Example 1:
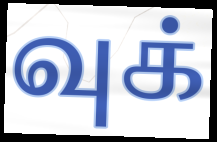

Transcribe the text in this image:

வுக்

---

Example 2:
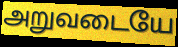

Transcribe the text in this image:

அறுவடையே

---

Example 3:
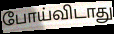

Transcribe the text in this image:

போய்விடாது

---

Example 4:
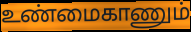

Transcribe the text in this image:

உண்மைகாணும்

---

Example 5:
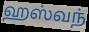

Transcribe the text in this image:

ஹஸ்வந்